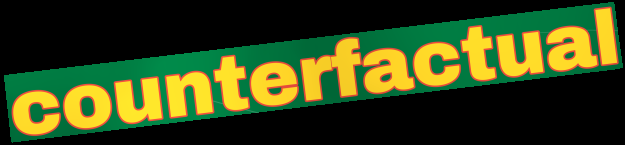
counterfactual